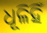
ଧୂଳିହିଁ